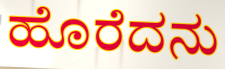
ಹೊರೆದನು